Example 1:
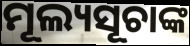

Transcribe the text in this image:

ମୂଲ୍ୟସୂଚାଙ୍କ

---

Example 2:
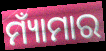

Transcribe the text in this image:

ମ୍ୟାଁମାର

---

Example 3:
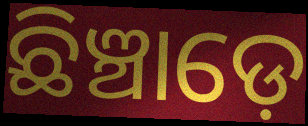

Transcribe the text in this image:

ଛିଞ୍ଚାଡ଼େ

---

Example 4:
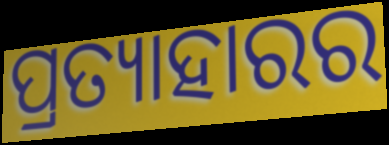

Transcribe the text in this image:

ପ୍ରତ୍ୟାହାରର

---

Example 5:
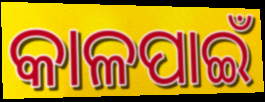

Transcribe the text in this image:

କାଳପାଇଁ